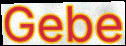
Gebe